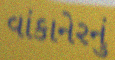
વાંકાનેરનું